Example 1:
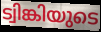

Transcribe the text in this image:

ട്വിങ്കിയുടെ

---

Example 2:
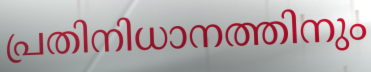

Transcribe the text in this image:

പ്രതിനിധാനത്തിനും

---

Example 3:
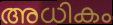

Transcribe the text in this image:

അധികം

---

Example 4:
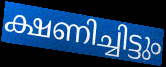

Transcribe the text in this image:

ക്ഷണിച്ചിട്ടും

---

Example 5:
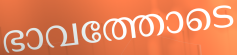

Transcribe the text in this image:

ഭാവത്തോടെ